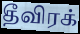
தீவிரக்